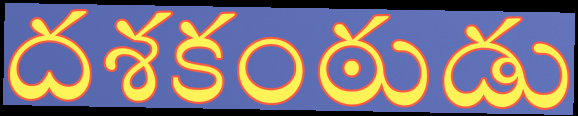
దశకంఠుడు